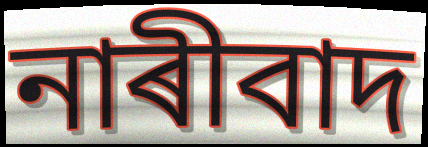
নাৰীবাদ